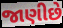
જાણીછે